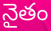
నైతం